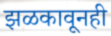
झळकावूनही